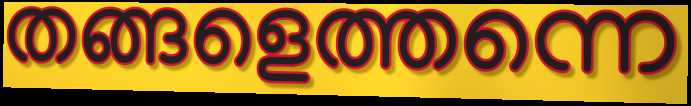
തങ്ങളെത്തന്നെ